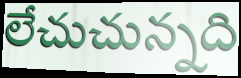
లేచుచున్నది